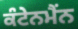
ਕੰਟੇਨਮੈਂਨ